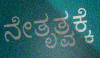
ನೇತೃತ್ವಕ್ಕೆ